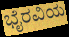
ಭೈರವಿಯ